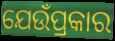
ଯେଉଁପ୍ରକାର